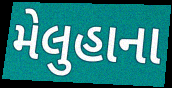
મેલુહાના